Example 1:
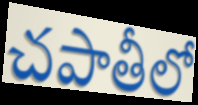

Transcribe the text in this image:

చపాతీలో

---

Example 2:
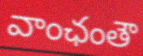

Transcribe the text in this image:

వాంఛంతౌ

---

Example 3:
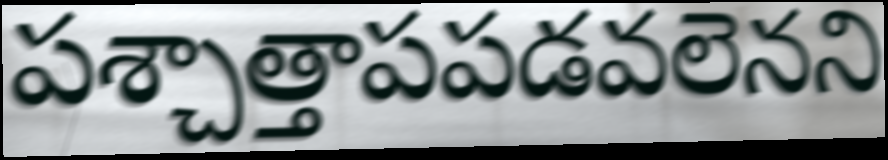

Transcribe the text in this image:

పశ్చాత్తాపపడవలెనని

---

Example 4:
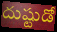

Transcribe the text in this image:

దుష్టుడో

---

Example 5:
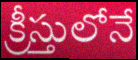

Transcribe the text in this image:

క్రీస్తులోనే